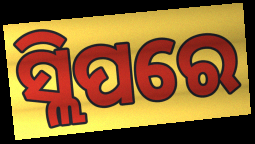
ସ୍ଲିପରେ